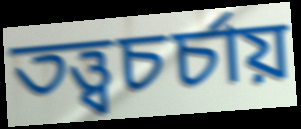
তত্ত্বচর্চায়